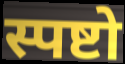
स्पष्टो